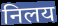
निलय